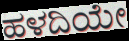
ಹಳದಿಯೇ